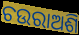
ଚଉରାଅଶି